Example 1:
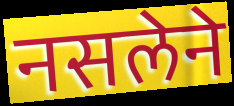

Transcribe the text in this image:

नसलेने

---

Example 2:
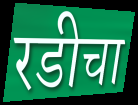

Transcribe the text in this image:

रडीचा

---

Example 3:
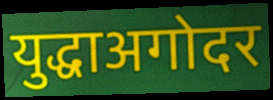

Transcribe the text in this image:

युद्धाअगोदर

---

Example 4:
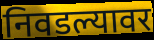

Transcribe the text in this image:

निवडल्यावर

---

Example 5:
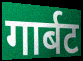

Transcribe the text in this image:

गार्बट